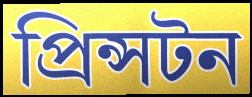
প্ৰিন্সটন